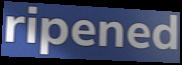
ripened